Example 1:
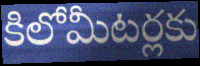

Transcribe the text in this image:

కిలోమీటర్లకు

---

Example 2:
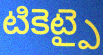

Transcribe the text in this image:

టికెట్పై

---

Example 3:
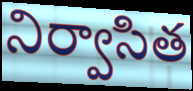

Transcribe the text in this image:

నిర్వాసిత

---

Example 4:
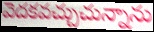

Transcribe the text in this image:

వెదకవచ్చుచున్నాను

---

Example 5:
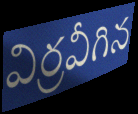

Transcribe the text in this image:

విర్రవీగిన